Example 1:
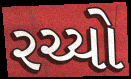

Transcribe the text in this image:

રચ્યો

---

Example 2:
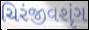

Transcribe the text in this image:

ચિરંજીવશૃંગ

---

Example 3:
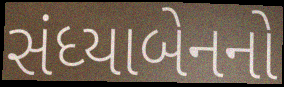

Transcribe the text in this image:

સંધ્યાબેનનો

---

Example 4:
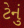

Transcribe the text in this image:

ટેનું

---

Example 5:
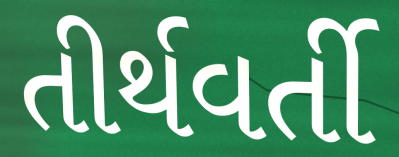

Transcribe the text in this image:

તીર્થવર્તી